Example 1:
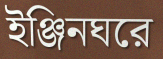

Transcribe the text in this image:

ইঞ্জিনঘরে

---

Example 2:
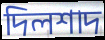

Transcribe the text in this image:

দিলশাদ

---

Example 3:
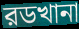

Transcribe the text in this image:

রডখানা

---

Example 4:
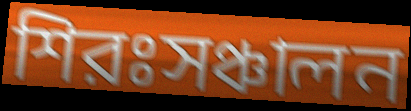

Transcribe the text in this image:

শিরঃসঞ্চালন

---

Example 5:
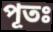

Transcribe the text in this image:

পূতঃ